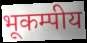
भूकम्पीय